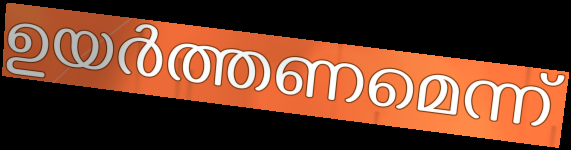
ഉയർത്തണമെന്ന്